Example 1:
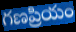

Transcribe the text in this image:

గణప్రియం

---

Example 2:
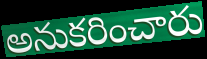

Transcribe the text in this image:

అనుకరించారు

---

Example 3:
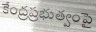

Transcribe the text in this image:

కేంద్రప్రభుత్వంపై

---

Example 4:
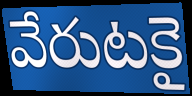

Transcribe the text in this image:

వేరుటకై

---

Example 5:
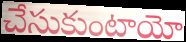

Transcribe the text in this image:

చేసుకుంటాయో